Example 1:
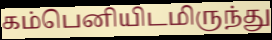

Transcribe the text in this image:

கம்பெனியிடமிருந்து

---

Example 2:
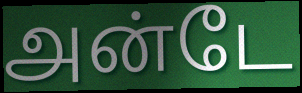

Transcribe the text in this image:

அன்டே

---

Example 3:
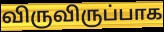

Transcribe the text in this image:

விருவிருப்பாக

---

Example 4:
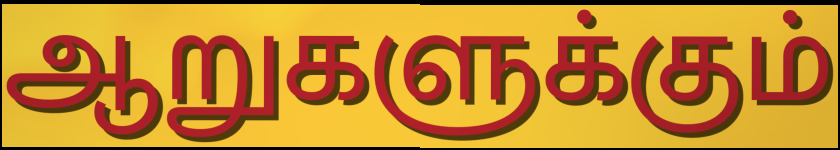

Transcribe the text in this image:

ஆறுகளுக்கும்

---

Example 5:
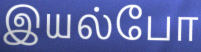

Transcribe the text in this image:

இயல்போ